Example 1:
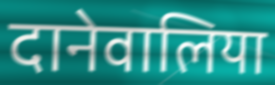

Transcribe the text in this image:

दानेवालिया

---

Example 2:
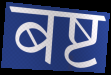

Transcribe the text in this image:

बष्ट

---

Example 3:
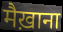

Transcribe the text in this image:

मैख़ाना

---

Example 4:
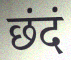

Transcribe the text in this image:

छंदं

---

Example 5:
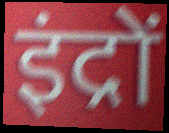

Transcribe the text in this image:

इंद्रों